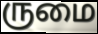
ருமை